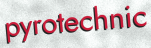
pyrotechnic